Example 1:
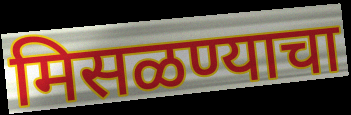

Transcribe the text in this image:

मिसळण्याचा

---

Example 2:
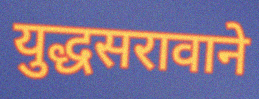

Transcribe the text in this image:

युद्धसरावाने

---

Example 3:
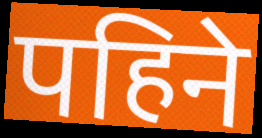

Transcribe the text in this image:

पहिने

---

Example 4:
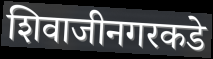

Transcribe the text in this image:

शिवाजीनगरकडे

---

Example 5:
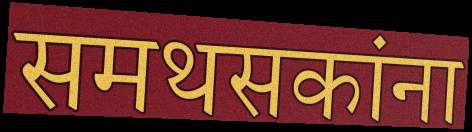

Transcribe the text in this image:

समथसकांना